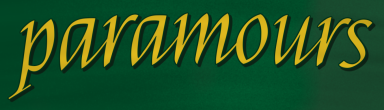
paramours